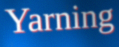
Yarning